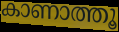
കാണാത്തൂ